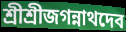
শ্রীশ্রীজগন্নাথদেব